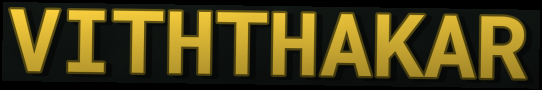
VITHTHAKAR